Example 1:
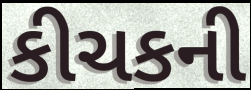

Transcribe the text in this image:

કીચકની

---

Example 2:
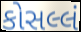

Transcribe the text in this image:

કોસલ્લં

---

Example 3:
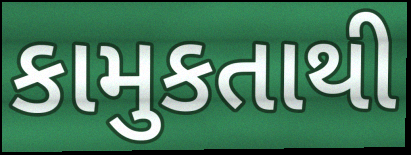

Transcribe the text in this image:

કામુકતાથી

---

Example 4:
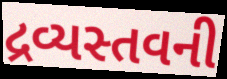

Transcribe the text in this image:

દ્રવ્યસ્તવની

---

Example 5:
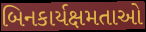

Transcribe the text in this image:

બિનકાર્યક્ષમતાઓ